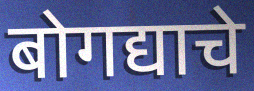
बोगद्याचे